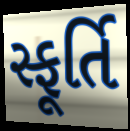
સ્ફૂર્તિ